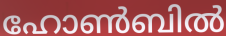
ഹോൺബിൽ